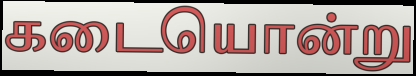
கடையொன்று